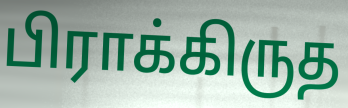
பிராக்கிருத